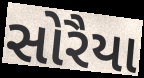
સોરૈયા